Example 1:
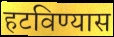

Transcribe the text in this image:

हटविण्यास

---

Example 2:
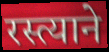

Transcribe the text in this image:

रस्त्याने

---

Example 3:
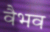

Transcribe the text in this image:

वैभव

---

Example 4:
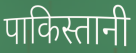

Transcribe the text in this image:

पाकिस्तानी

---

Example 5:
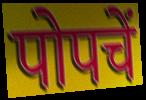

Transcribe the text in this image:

पोपचें